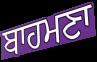
ਬਾਹਮਣਾ